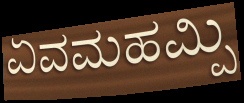
ಏವಮಹಮ್ಪಿ